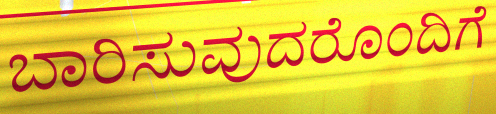
ಬಾರಿಸುವುದರೊಂದಿಗೆ